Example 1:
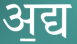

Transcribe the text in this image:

अ॒द्य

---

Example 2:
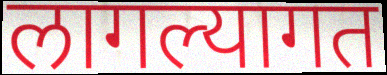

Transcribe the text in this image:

लागल्यागत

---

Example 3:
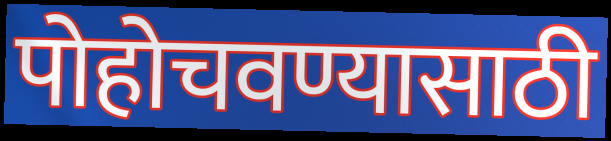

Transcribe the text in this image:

पोहोचवण्यासाठी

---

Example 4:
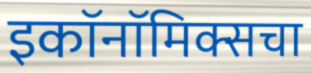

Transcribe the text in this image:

इकॉनॉमिक्सचा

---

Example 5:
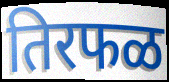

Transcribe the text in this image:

तिरफळ